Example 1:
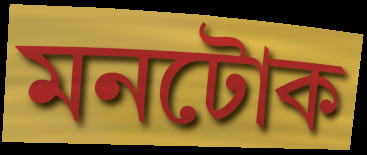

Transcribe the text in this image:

মনটোক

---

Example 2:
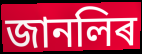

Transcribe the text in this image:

জানলিৰ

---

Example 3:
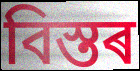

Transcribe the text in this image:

বিস্তৰ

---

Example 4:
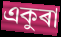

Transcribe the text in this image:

একুৰা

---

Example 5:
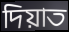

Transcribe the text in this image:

দিয়াত